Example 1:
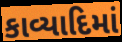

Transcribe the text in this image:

કાવ્યાદિમાં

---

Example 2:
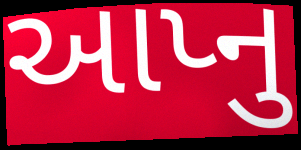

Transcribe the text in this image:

આપ્નુ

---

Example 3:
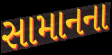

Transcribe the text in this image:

સામાનના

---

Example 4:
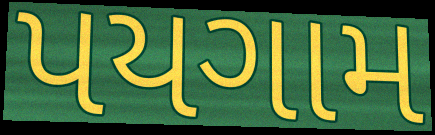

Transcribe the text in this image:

પયગામ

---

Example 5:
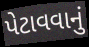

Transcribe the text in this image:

પેટાવવાનું